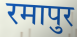
रमापुर